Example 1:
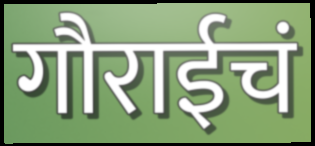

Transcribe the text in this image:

गौराईचं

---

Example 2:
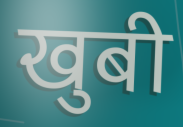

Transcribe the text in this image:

खुबी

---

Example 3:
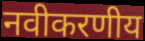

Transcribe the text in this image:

नवीकरणीय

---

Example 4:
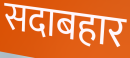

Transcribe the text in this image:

सदाबहार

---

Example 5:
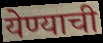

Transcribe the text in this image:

येण्याची